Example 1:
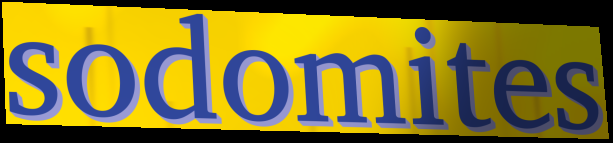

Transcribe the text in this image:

sodomites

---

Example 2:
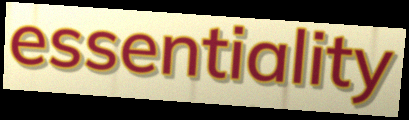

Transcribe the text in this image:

essentiality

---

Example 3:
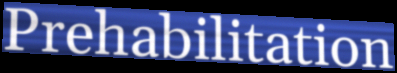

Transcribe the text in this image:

Prehabilitation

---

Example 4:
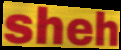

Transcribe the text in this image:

sheh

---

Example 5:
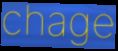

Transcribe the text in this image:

chage